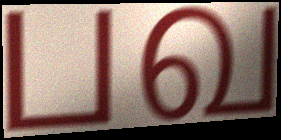
பவ